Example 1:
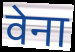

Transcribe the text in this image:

वेना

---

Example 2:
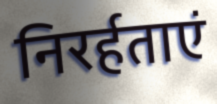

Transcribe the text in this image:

निरर्हताएं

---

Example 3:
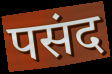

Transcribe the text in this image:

पसंद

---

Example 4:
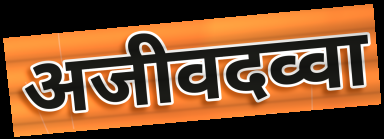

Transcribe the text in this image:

अजीवदव्वा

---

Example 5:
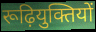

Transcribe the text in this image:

रूढ़ियुक्तियों